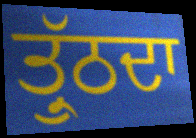
ਤ੍ਰੁੱਠਦਾ